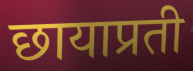
छायाप्रती